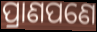
ପ୍ରାଣପଣେ